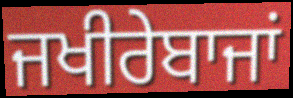
ਜਖੀਰੇਬਾਜਾਂ